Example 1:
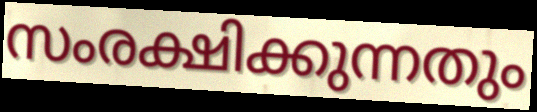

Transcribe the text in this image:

സംരക്ഷിക്കുന്നതും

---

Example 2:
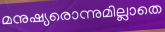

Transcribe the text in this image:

മനുഷ്യരൊന്നുമില്ലാതെ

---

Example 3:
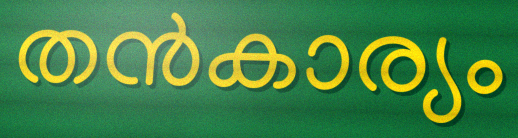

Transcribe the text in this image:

തൻകാര്യം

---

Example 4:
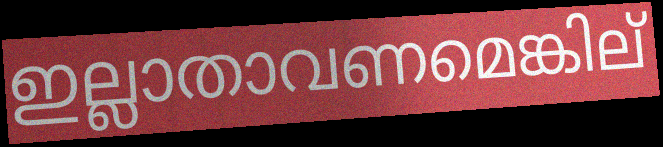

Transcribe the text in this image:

ഇല്ലാതാവണമെങ്കില്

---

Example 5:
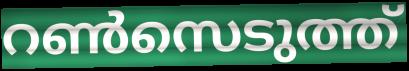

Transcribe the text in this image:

റൺസെടുത്ത്